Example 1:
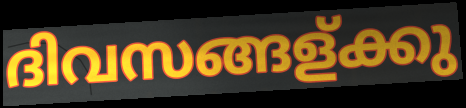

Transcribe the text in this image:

ദിവസങ്ങള്ക്കു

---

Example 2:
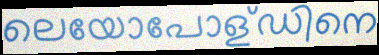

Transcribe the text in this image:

ലെയോപോള്ഡിനെ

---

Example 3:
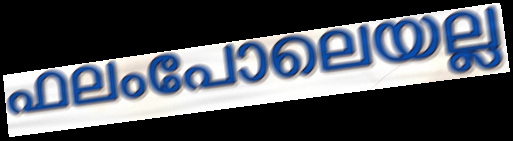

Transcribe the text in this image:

ഫലംപോലെയല്ല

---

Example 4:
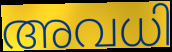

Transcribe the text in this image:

അവധി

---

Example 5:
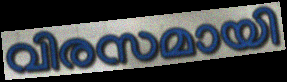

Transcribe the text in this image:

വിരസമായി